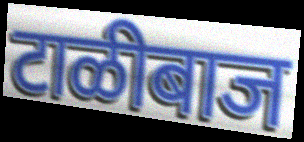
टाळीबाज